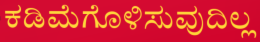
ಕಡಿಮೆಗೊಳಿಸುವುದಿಲ್ಲ